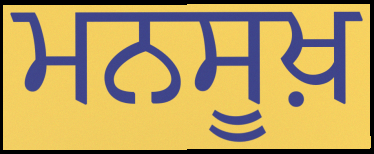
ਮਨਸੂਖ਼